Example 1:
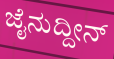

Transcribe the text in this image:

ಜೈನುದ್ದೀನ್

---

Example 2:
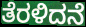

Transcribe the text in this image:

ತೆರಳಿದನೆ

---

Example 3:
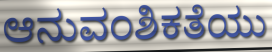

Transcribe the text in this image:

ಆನುವಂಶಿಕತೆಯು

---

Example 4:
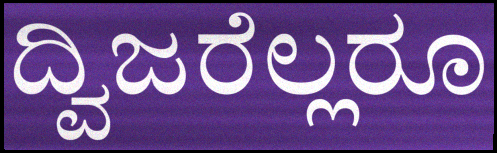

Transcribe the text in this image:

ದ್ವಿಜರೆಲ್ಲರೂ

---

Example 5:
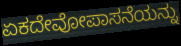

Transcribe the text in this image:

ಏಕದೇವೋಪಾಸನೆಯನ್ನು